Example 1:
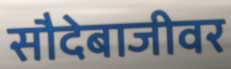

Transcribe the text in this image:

सौदेबाजीवर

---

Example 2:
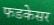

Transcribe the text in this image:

फडकेसर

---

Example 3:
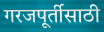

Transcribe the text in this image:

गरजपूर्तीसाठी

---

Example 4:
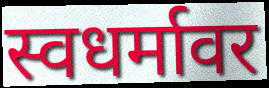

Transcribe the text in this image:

स्वधर्मावर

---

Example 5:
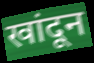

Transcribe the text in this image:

खांदून